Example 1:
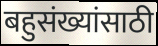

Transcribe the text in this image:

बहुसंख्यांसाठी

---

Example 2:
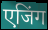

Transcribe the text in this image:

एजिंग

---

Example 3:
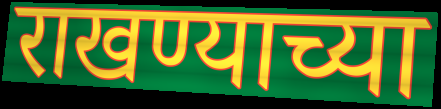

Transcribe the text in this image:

राखण्याच्या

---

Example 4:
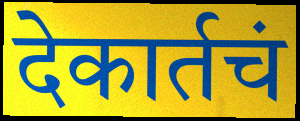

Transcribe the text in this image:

देकार्तचं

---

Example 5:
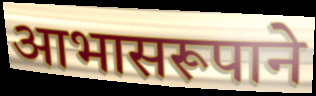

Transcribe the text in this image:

आभासरूपाने